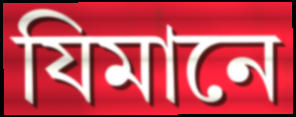
যিমানে